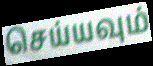
செய்யவும்